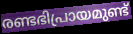
രണ്ടഭിപ്രായമുണ്ട്